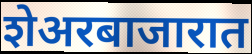
शेअरबाजारात